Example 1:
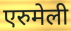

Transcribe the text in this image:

एरुमेली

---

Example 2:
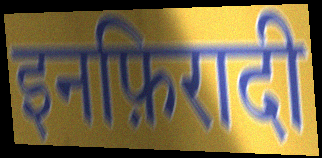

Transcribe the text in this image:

इनफ़िरादी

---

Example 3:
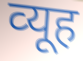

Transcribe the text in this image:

व्‍यूह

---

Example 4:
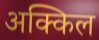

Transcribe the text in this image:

अक्किल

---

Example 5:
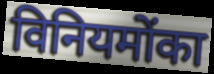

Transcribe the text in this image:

विनियमोंका